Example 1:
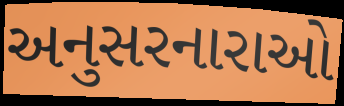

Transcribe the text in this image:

અનુસરનારાઓ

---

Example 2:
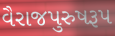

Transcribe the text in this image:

વૈરાજપુરુષરૂપ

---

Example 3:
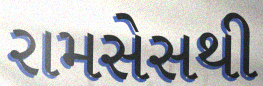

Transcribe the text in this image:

રામસેસથી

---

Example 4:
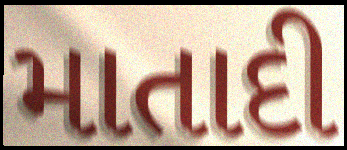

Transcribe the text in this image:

માતાદી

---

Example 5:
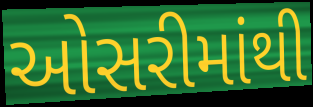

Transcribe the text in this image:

ઓસરીમાંથી